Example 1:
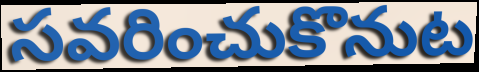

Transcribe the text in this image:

సవరించుకొనుట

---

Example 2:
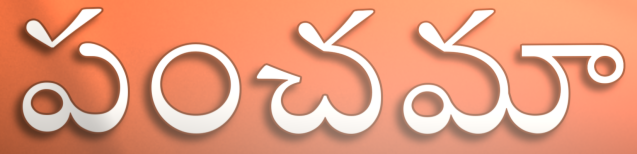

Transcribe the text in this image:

పంచమా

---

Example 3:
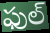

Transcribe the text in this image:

ఫుల్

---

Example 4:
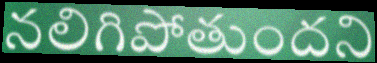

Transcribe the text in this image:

నలిగిపోతుందని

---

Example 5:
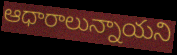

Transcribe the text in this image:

ఆధారాలున్నాయని